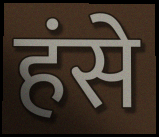
हंसे